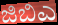
ಜಿಬಿಎ